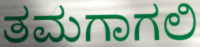
ತಮಗಾಗಲಿ